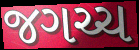
જગચ્ચ